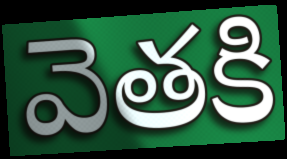
వెతకి